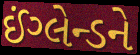
ઈંગ્લેન્ડને